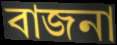
বাজনা